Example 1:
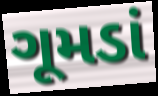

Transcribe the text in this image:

ગૂમડાં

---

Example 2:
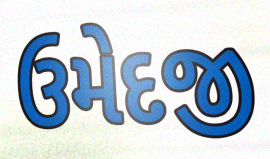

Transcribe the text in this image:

ઉમેદજી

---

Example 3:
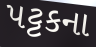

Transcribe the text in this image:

પટ્ટકના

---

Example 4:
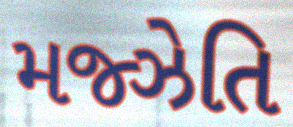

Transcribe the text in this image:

મજ્ઝેતિ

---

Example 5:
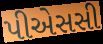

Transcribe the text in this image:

પીએસસી